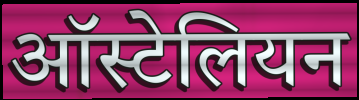
ऑस्टेलियन